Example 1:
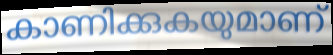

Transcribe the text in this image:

കാണിക്കുകയുമാണ്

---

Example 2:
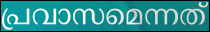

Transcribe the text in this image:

പ്രവാസമെന്നത്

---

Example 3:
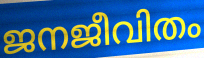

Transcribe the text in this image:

ജനജീവിതം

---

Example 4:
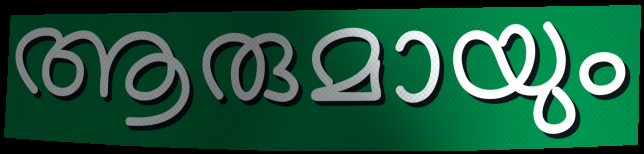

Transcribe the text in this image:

ആരുമായും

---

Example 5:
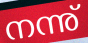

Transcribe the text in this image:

നന്നു്